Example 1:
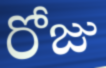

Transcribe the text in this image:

రోజు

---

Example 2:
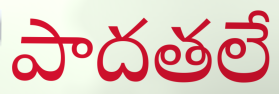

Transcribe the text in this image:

పాదతలే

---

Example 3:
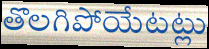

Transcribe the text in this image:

తొలగిపోయేటట్లు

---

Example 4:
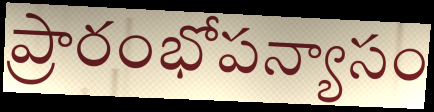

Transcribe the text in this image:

ప్రారంభోపన్యాసం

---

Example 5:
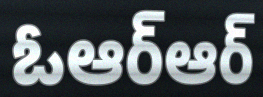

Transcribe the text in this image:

ఓఆర్ఆర్